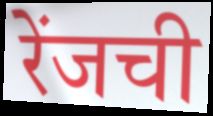
रेंजची